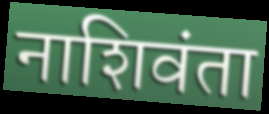
नाशिवंता